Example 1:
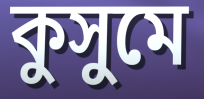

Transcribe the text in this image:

কুসুমে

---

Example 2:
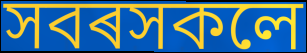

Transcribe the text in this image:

সবৰসকলে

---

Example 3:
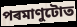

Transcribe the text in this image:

পৰমাণুটোত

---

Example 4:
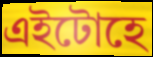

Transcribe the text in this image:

এইটোহে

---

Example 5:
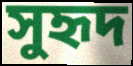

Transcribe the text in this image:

সুহৃদ